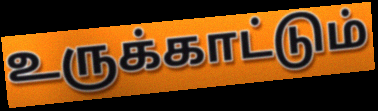
உருக்காட்டும்